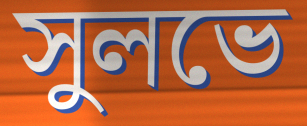
সুলভে